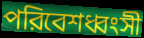
পরিবেশধ্বংসী